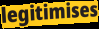
legitimises